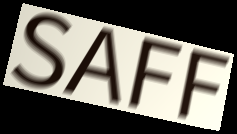
SAFF